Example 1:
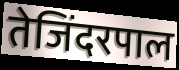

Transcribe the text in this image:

तेजिंदरपाल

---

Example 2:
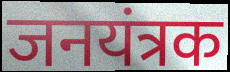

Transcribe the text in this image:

जनयंत्रक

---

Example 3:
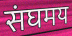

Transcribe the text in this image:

संघमय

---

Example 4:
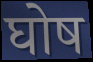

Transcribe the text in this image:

घोष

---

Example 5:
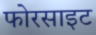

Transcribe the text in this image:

फोरसाइट